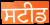
ਸਟੀਡ